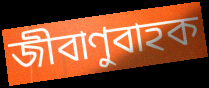
জীবাণুবাহক